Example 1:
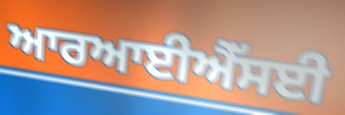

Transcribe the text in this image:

ਆਰਆਈਐੱਸਈ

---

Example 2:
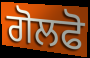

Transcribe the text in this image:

ਗੋਲਫੋ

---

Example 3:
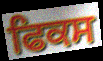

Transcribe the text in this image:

ਫਿਕਸ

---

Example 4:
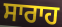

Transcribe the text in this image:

ਸਾਰਾਹ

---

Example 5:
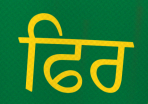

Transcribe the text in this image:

ਫਿਰ